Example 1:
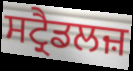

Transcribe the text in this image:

ਸਟ੍ਰੈਡਲਜ਼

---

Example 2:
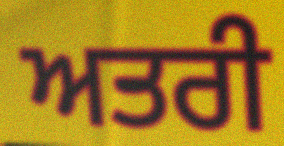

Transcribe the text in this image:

ਅਤਰੀ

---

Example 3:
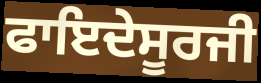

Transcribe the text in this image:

ਫਾਇਦੇਸੂਰਜੀ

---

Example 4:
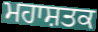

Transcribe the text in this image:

ਮਹਾਸ਼ਤਕ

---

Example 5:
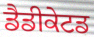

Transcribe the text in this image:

ਡੈਡੀਕੇਟਡ